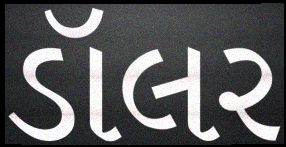
ડૉલર